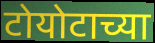
टोयोटाच्या